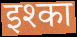
इश्का